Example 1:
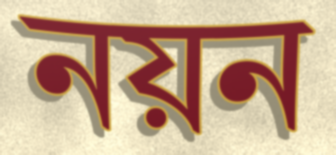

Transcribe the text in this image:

নয়ন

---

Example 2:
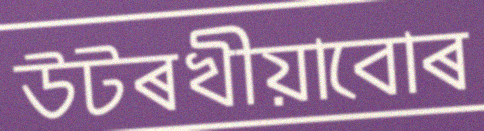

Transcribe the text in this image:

উটৰখীয়াবোৰ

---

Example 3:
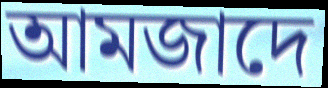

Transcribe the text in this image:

আমজাদে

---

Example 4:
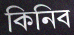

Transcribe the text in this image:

কিনিব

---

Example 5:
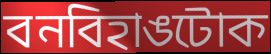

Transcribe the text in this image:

বনবিহাঙটোক